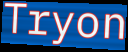
Tryon